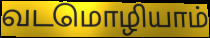
வடமொழியாம்